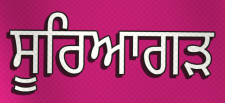
ਸੂਰਿਆਗੜ